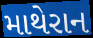
માથેરાન